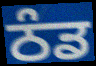
ਠੰਡ